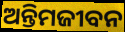
ଅନ୍ତିମଜୀବନ